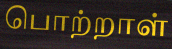
பொற்றாள்